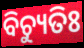
ବିଚ୍ୟୁତିଃ